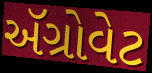
ઍગ્રોવેટ